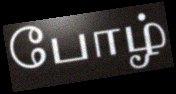
போழ்